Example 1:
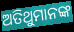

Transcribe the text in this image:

ଅତିଥୁମାନଙ୍କ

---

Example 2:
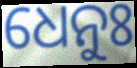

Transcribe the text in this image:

ଧେନୁଃ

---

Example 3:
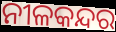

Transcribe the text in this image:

ନୀଳକନ୍ଦର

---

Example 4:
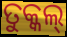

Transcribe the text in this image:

ତୁକ୍କଲ୍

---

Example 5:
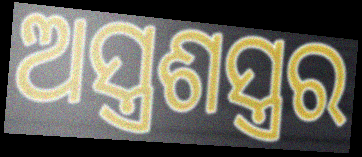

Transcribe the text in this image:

ଅସ୍ତ୍ରଶସ୍ତ୍ରର